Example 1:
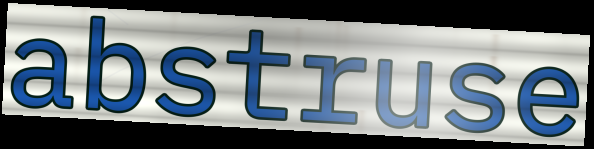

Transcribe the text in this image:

abstruse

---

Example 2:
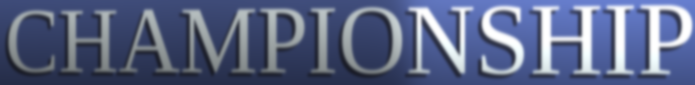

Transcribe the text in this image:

CHAMPIONSHIP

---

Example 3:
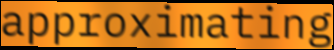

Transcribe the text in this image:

approximating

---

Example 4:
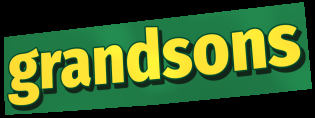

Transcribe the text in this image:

grandsons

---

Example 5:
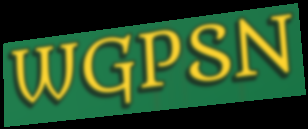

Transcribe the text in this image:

WGPSN